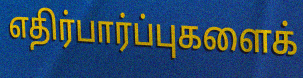
எதிர்பார்ப்புகளைக்